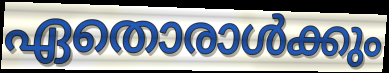
ഏതൊരാൾക്കും